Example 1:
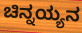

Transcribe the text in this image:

ಚಿನ್ನಯ್ಯನ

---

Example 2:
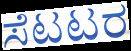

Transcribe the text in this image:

ಸೆಟಟರ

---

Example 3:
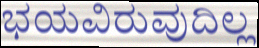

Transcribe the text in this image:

ಭಯವಿರುವುದಿಲ್ಲ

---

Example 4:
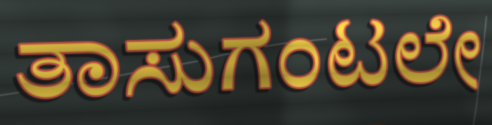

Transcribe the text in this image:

ತಾಸುಗಂಟಲೇ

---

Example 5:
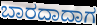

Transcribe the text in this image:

ಬಾರದಾದಾಗ